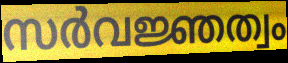
സർവജ്ഞത്വം